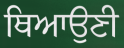
ਥਿਆਉਣੀ